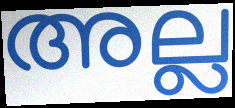
അല്ല